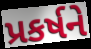
પ્રકર્ષને